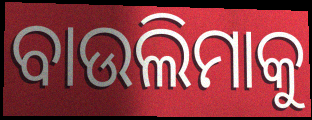
ବାଉଲିମାକୁ